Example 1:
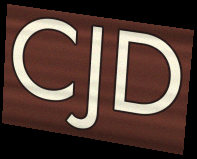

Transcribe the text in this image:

CJD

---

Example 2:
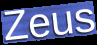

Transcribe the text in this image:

Zeus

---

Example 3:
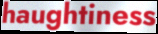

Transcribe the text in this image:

haughtiness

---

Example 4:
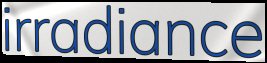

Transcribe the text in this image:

irradiance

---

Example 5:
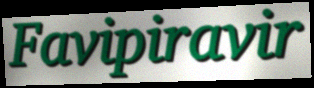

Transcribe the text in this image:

Favipiravir